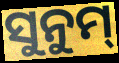
ସୁନୁମ୍